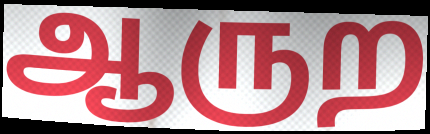
ஆருற